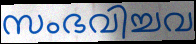
സംഭവിച്ചവ